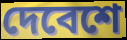
দেবেশে